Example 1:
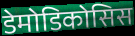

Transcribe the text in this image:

डेमोडिकोसिस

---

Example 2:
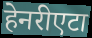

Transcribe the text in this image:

हेनरीएटा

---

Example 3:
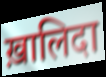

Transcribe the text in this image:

ख़ालिदा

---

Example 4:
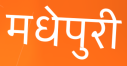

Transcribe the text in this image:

मधेपुरी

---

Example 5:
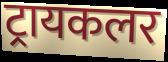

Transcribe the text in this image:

ट्रायकलर